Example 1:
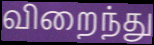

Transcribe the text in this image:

விறைந்து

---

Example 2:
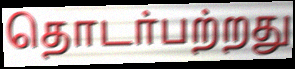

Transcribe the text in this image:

தொடர்பற்றது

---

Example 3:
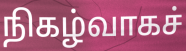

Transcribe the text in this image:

நிகழ்வாகச்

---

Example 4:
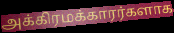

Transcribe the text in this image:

அக்கிரமக்காரர்களாக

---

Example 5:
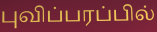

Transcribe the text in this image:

புவிப்பரப்பில்